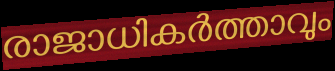
രാജാധികർത്താവും